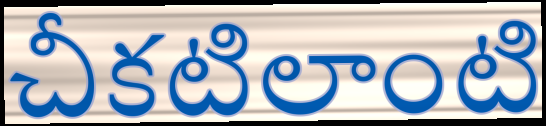
చీకటిలాంటి